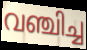
വഞ്ചിച്ച